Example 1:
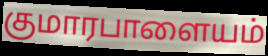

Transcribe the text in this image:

குமாரபாளையம்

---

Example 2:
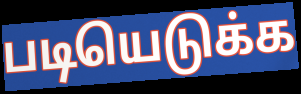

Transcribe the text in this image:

படியெடுக்க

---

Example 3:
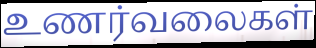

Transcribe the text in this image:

உணர்வலைகள்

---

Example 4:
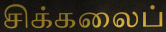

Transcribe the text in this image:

சிக்கலைப்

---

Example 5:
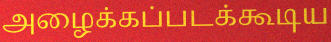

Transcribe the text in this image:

அழைக்கப்படக்கூடிய